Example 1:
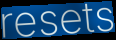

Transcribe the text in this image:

resets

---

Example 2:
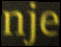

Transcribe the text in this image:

nje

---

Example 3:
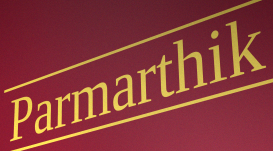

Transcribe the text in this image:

Parmarthik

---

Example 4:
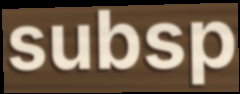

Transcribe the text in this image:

subsp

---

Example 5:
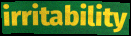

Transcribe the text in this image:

irritability